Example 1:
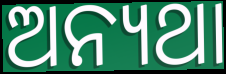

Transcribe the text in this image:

ଅନ୍ୟଥା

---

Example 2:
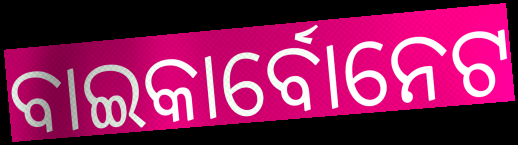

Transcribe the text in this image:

ବାଇକାର୍ବୋନେଟ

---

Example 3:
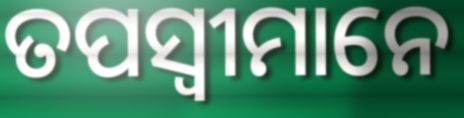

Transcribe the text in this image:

ତପସ୍ୱୀମାନେ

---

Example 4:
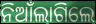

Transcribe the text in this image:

ନିଆଁଲାଗିଲେ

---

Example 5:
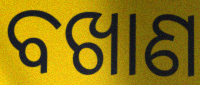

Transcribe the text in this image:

ବଖାଣ